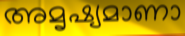
അമൃഷ്യമാണാ